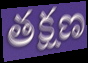
తక్షణ